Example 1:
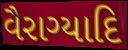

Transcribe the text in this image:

વૈરાગ્યાદિ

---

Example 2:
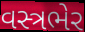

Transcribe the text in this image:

વસ્ત્રભેર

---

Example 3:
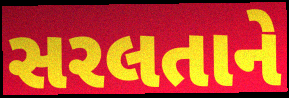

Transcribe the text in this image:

સરલતાને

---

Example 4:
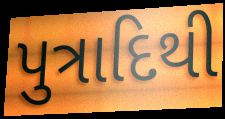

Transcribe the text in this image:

પુત્રાદિથી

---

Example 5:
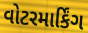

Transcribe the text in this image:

વોટરમાર્કિંગ